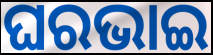
ଘରଭାଇ